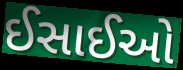
ઈસાઈઓ